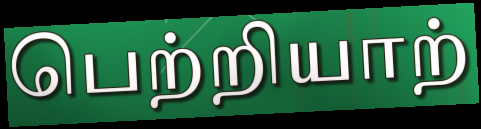
பெற்றியாற்